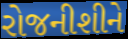
રોજનીશીને